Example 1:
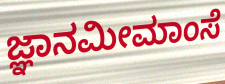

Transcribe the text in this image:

ಜ್ಞಾನಮೀಮಾಂಸೆ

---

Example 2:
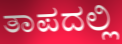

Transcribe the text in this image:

ತಾಪದಲ್ಲಿ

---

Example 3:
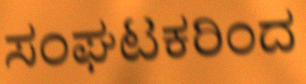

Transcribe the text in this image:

ಸಂಘಟಕರಿಂದ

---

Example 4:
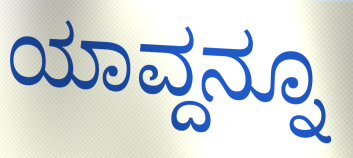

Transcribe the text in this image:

ಯಾವ್ದನ್ನೂ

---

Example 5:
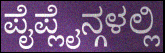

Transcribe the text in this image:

ಪೈಪ್ಲೈನ್ಗಳಲ್ಲಿ